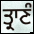
ਤ੍ਰਾਣੰ